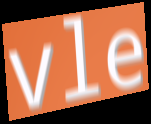
vle